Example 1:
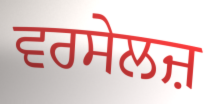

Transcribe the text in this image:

ਵਰਸੇਲਜ਼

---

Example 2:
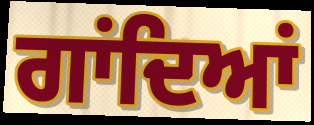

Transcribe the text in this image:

ਗਾਂਦਿਆਂ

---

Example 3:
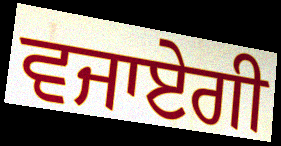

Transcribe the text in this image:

ਵਜਾਏਗੀ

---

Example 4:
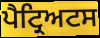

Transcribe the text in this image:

ਪੈਟ੍ਰਿਅਟਸ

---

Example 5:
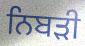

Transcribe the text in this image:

ਨਿਬੜੀ